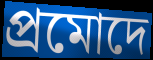
প্ৰমোদে